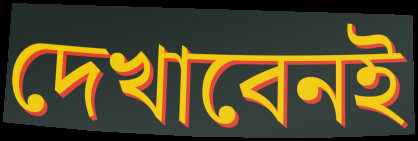
দেখাবেনই